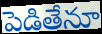
పెడితేనూ